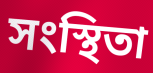
সংস্থিতা